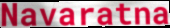
Navaratna